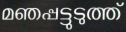
മഞപ്പട്ടുടുത്ത്